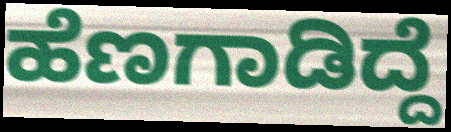
ಹೆಣಗಾಡಿದ್ದೆ